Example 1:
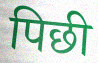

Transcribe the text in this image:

पिछी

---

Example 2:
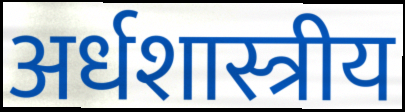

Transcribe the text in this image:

अर्धशास्त्रीय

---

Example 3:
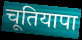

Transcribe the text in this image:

चूतियापा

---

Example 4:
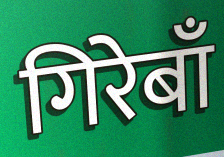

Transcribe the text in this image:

गिरेबाँ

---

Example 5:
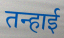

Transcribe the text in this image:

तन्हाई